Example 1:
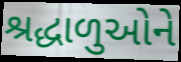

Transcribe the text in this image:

શ્રદ્ધાળુઓને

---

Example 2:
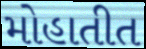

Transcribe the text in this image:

મોહાતીત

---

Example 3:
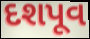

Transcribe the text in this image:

દશપૂવ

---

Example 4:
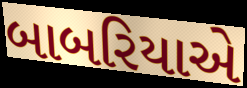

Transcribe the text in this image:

બાબરિયાએ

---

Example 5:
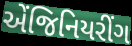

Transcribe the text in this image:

એંજિનિયરીંગ